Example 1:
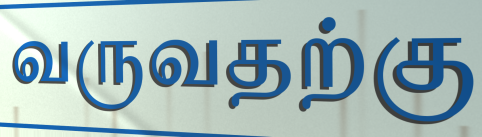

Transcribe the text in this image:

வருவதற்கு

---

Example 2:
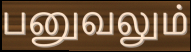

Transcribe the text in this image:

பனுவலும்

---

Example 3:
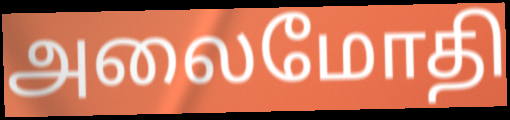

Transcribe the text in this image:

அலைமோதி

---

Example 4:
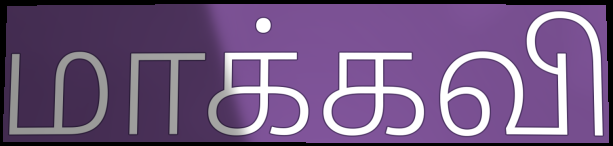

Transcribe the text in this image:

மாக்கவி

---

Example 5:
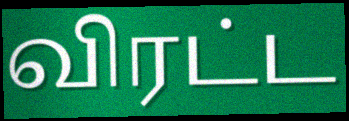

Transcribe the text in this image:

விரட்ட